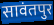
सावंतपुर